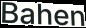
Bahen